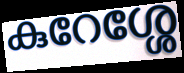
കുറേശ്ശേ